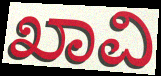
ಖಾವಿ